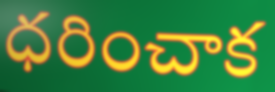
ధరించాక